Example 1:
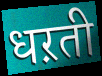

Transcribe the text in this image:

धऱती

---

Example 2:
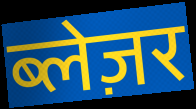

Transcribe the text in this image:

ब्लेज़र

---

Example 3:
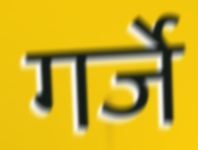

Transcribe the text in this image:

गर्जे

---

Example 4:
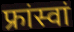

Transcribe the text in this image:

फ्रांस्वां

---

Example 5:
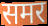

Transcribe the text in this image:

समर